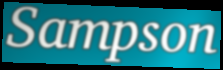
Sampson